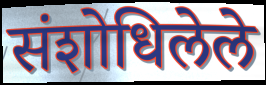
संशोधिलेले